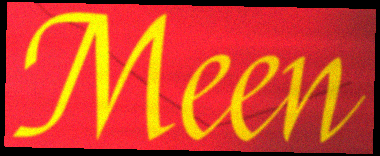
Meen